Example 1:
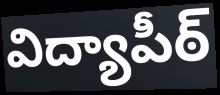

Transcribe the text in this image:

విద్యాపీఠ్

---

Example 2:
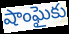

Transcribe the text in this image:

షాంఘైకు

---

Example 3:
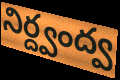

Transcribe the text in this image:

నిర్ద్వంద్వ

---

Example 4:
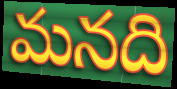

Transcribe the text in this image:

మనది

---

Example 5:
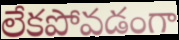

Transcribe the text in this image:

లేకపోవడంగా